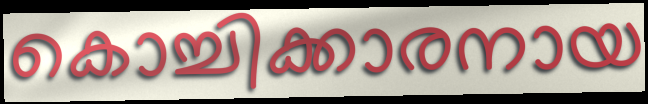
കൊച്ചിക്കാരനായ